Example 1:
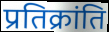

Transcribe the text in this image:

प्रतिक्रांति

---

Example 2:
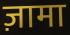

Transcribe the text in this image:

ज़ामा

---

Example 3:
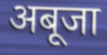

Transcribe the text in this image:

अबूजा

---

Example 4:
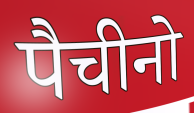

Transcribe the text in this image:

पैचीनो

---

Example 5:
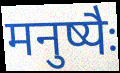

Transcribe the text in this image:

मनुष्यैः